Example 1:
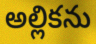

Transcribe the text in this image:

అల్లికను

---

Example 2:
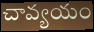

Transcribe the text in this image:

చావ్యయం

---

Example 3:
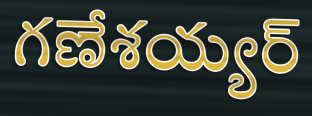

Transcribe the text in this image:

గణేశయ్యర్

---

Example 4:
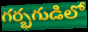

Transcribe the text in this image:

గర్భగుడిలో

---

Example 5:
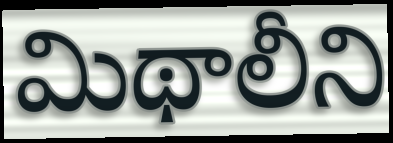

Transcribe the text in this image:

మిథాలీని